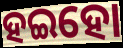
ହଇହୋ